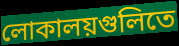
লোকালয়গুলিতে